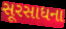
સૂરસાધના